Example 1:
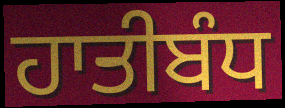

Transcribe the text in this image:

ਹਾਤੀਬੰਧ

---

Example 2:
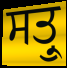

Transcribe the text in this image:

ਸਤ੍ਰੁ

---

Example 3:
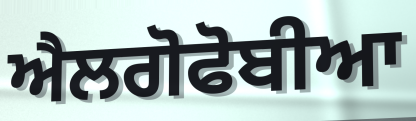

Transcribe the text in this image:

ਐਲਗੋਫੋਬੀਆ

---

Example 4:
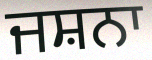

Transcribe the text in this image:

ਜਸ਼ਨਾ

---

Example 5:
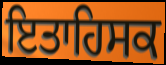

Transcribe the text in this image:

ਇਤਾਹਿਸਕ